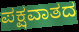
ಪಕ್ಷವಾತದ